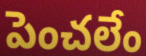
పెంచలేం